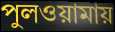
পুলওয়ামায়